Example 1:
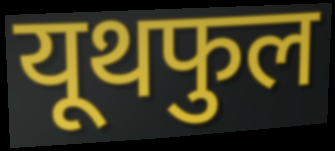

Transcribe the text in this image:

यूथफुल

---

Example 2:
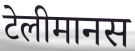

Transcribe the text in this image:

टेलीमानस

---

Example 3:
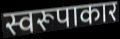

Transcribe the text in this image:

स्वरूपाकार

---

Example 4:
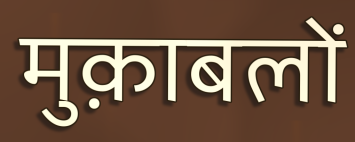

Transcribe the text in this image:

मुक़ाबलों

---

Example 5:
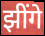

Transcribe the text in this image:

झींगे